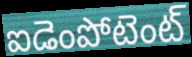
ఐడెంపోటెంట్